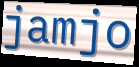
jamjo